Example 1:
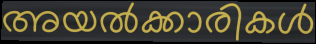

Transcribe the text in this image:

അയൽക്കാരികൾ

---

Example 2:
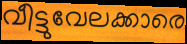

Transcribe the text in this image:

വീട്ടുവേലക്കാരെ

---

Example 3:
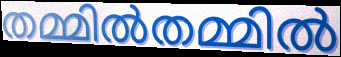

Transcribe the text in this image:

തമ്മിൽതമ്മിൽ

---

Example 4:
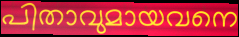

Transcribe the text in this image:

പിതാവുമായവനെ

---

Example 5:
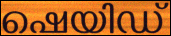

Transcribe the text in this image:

ഷെയിഡ്